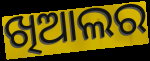
ଖିଆଲର